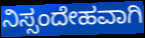
ನಿಸ್ಸಂದೇಹವಾಗಿ